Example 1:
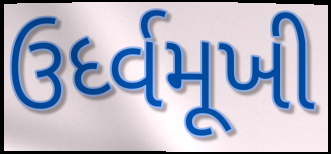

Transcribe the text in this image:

ઉર્ધ્વમૂખી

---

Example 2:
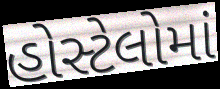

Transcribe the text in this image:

હોસ્ટેલોમાં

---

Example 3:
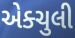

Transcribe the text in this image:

એક્ચુલી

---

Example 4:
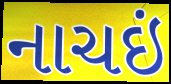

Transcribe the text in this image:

નાચઇં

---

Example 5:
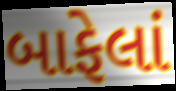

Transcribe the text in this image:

બાફેલાં